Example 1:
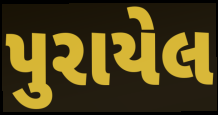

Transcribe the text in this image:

પુરાયેલ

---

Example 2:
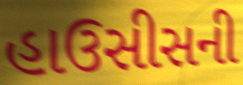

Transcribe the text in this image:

હાઉસીસની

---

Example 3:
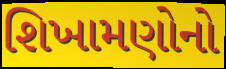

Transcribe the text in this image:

શિખામણોનો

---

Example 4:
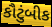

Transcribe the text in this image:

કૌટુંબીક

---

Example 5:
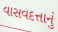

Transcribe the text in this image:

વાસવદત્તાનું